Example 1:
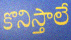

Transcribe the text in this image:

కొనిస్తాలే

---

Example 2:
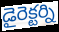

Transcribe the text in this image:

డైరెక్టర్ని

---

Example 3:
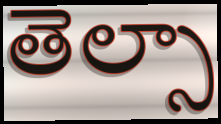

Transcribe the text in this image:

తెల్సా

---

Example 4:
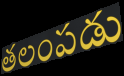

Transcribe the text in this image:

తలంపడు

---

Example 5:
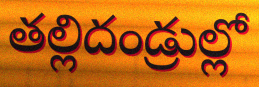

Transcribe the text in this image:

తల్లిదండ్రుల్లో